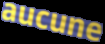
aucune